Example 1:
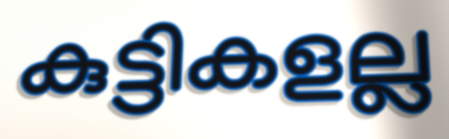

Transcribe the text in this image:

കുട്ടികളല്ല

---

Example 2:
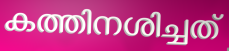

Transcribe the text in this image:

കത്തിനശിച്ചത്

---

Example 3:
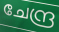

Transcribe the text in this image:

ചേന്ദ്ര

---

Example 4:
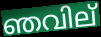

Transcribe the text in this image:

ഞവില്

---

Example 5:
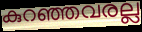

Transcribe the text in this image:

കുറഞ്ഞവരല്ല